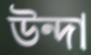
উন্দা